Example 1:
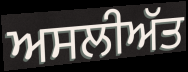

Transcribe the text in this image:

ਅਸਲੀਅੱਤ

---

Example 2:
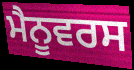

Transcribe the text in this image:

ਮੈਨੂਵਰਸ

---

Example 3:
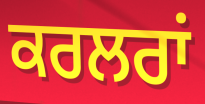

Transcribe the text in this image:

ਕਰਲਰਾਂ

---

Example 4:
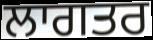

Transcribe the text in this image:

ਲਾਗਤਰ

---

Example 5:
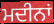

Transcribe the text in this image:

ਮਦੀਨਾਂ